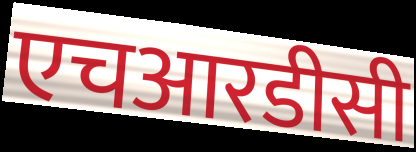
एचआरडीसी